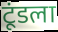
टूंडला